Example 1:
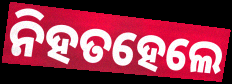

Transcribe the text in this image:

ନିହତହେଲେ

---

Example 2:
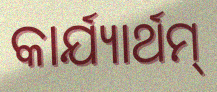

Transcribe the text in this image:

କାର୍ଯ୍ୟାର୍ଥମ୍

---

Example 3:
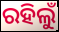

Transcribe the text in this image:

ରହିଲୁଁ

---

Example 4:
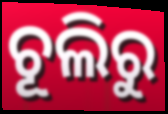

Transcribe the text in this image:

ଚୂଲିରୁ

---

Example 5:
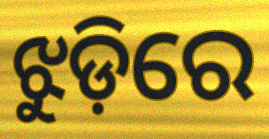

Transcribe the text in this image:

ଝୁଡ଼ିରେ